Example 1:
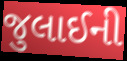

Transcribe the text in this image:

જુલાઈની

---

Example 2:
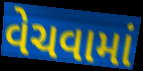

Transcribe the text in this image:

વેચવામાં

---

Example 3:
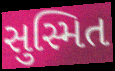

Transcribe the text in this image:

સુસ્મિત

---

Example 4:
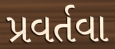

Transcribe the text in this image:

પ્રવર્તવા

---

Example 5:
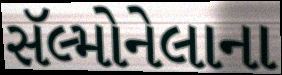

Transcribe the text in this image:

સૅલ્મોનેલાના